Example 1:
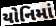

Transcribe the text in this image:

યોનિમાં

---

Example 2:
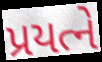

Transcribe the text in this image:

પ્રયત્ને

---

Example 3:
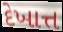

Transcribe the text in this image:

દેખાત્ત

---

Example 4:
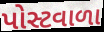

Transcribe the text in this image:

પોસ્ટવાળા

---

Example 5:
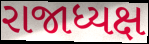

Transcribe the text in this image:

રાજાધ્યક્ષ